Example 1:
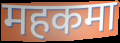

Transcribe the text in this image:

महकमा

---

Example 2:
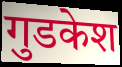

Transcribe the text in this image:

गुडकेश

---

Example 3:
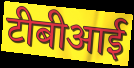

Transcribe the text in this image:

टीबीआई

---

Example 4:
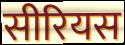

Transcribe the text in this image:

सीरियस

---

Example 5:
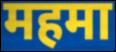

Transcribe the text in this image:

महमा